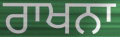
ਰਾਖਨਾ